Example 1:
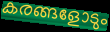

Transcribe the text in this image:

കരങ്ങളോടും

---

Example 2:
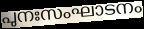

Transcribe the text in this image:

പുനഃസംഘാടനം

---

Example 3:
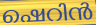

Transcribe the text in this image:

ഷെറിൻ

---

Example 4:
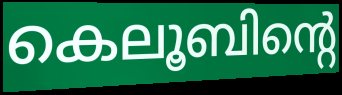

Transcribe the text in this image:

കെലൂബിന്റെ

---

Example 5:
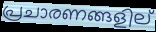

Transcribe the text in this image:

പ്രചാരണങ്ങളില്